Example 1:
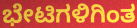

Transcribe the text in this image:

ಭೇಟಿಗಳಿಗಿಂತ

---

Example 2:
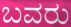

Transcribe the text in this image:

ಬವರು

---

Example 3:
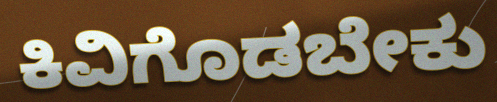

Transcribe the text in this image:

ಕಿವಿಗೊಡಬೇಕು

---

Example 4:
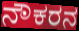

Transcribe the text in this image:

ನೌಕರನ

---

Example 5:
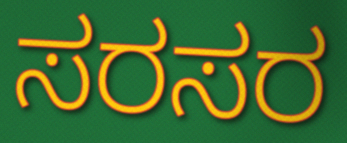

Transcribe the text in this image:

ಸರಸರ